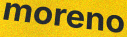
moreno